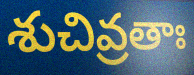
శుచివ్రతాః